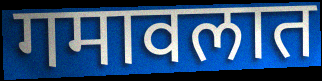
गमावलात